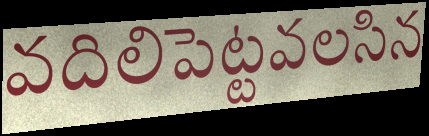
వదిలిపెట్టవలసిన